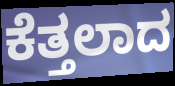
ಕೆತ್ತಲಾದ